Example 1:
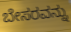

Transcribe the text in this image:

ಬೇಸರವನ್ನು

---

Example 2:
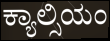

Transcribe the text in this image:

ಕ್ಯಾಲ್ಸಿಯಂ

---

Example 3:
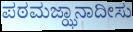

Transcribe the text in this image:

ಪಠಮಜ್ಝಾನಾದೀಸು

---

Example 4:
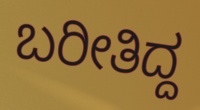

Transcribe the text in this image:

ಬರೀತಿದ್ದ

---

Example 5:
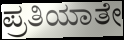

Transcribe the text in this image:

ಪ್ರತಿಯಾತೇ